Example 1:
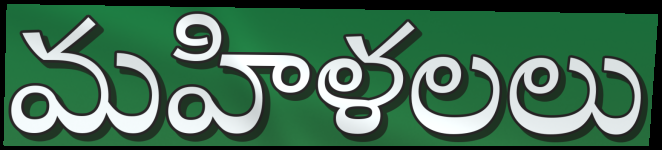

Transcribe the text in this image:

మహిళలలు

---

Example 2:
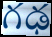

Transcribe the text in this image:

గఢ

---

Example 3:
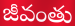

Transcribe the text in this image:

జీవంతు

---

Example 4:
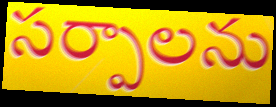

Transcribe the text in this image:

సర్పాలను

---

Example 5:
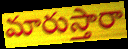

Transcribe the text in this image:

మారుస్తారా